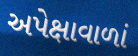
અપેક્ષાવાળાં